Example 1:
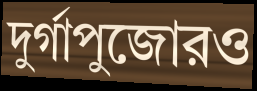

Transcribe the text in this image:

দুর্গাপুজোরও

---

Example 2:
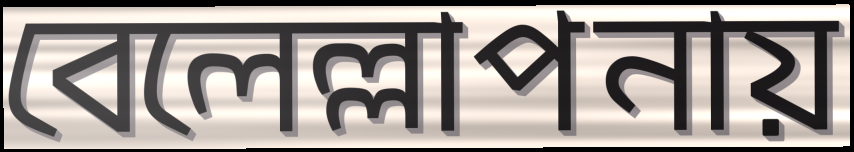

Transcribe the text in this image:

বেলেল্লাপনায়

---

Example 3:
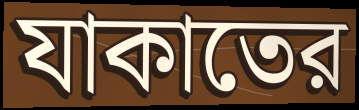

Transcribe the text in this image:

যাকাতের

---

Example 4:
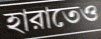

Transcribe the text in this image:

হারাতেও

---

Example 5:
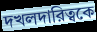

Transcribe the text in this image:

দখলদারিত্বকে